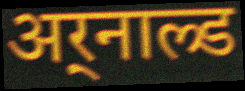
अर्नाल्ड